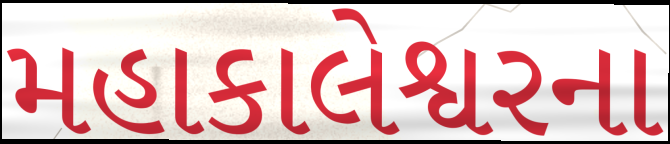
મહાકાલેશ્વરના